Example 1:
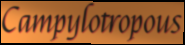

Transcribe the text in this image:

Campylotropous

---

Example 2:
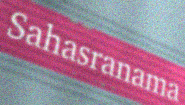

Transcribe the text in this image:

Sahasranama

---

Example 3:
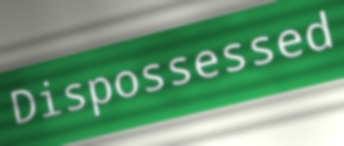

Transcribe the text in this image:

Dispossessed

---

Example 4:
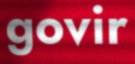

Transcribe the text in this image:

govir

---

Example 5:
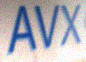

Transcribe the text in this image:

AVX